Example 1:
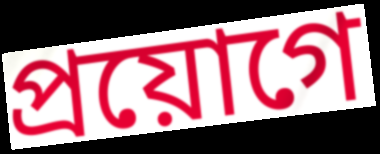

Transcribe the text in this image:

প্ৰয়োগে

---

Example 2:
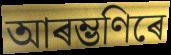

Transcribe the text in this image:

আৰম্ভণিৰে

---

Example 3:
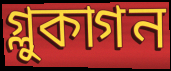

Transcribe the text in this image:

গ্লুকাগন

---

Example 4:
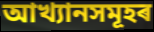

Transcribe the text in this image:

আখ্যানসমূহৰ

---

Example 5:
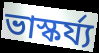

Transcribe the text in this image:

ভাস্কৰ্য্য